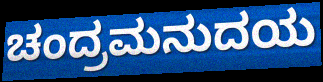
ಚಂದ್ರಮನುದಯ